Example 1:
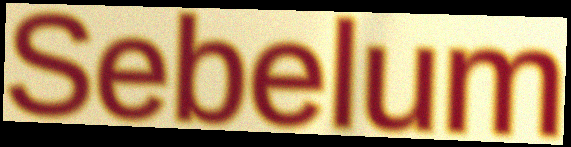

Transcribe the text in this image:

Sebelum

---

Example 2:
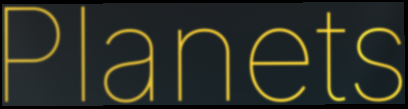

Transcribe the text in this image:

Planets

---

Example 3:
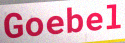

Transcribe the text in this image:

Goebel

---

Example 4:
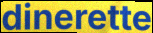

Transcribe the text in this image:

dinerette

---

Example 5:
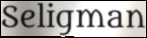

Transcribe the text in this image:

Seligman